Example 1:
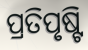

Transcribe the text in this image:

ପ୍ରତିପୃଷ୍ଟି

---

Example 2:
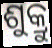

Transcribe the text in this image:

ଶୁକ୍ରୁ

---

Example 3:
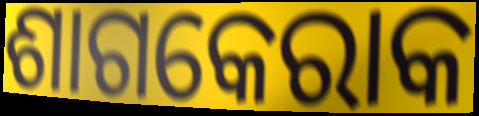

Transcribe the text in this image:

ଶାଗକେରାକ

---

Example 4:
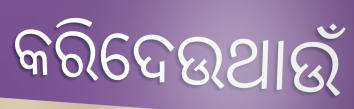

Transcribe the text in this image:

କରିଦେଉଥାଉଁ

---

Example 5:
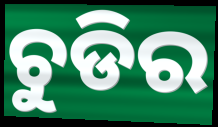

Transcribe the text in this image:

ଚୁଡିର